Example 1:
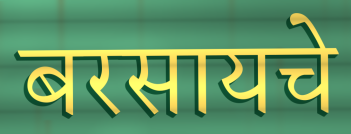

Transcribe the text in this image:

बरसायचे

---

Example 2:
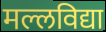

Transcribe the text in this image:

मल्लविद्या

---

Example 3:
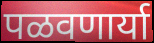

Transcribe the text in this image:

पळवणार्या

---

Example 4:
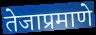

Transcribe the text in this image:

तेजाप्रमाणे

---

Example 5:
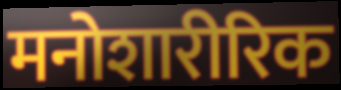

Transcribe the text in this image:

मनोशारीरिक